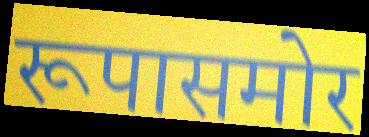
रूपासमोर